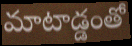
మాటాడ్డంతో